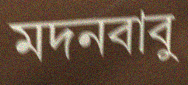
মদনবাবু